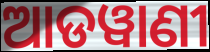
ଆଡୱାଣୀ